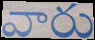
వారు